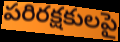
పరిరక్షకులపై